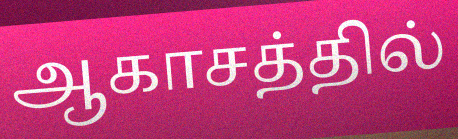
ஆகாசத்தில்